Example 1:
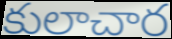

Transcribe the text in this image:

కులాచార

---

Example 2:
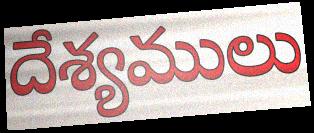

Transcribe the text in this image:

దేశ్యములు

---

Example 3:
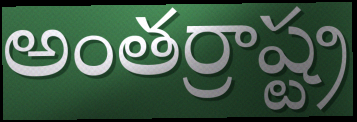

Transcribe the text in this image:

అంతర్రాష్ట్ర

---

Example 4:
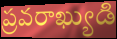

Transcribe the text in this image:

ప్రవరాఖ్యుడి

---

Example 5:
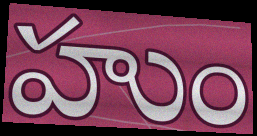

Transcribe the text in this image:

హుం